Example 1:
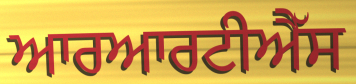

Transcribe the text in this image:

ਆਰਆਰਟੀਐੱਸ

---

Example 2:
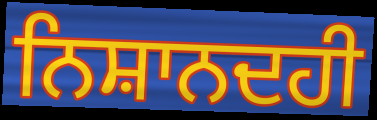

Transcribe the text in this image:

ਨਿਸ਼ਾਨਦਹੀ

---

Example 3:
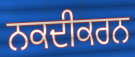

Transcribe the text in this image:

ਨਕਦੀਕਰਨ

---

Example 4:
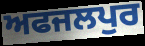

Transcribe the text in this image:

ਅਫਜਲਪੁਰ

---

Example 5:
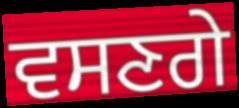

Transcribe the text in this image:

ਵਸਣਗੇ